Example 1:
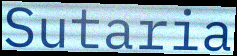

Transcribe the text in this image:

Sutaria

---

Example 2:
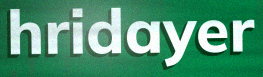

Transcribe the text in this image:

hridayer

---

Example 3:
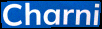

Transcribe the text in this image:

Charni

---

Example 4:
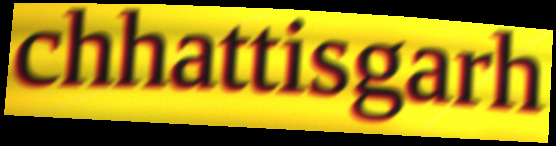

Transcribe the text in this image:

chhattisgarh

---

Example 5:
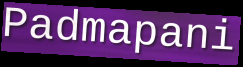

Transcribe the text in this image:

Padmapani